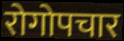
रोगोपचार